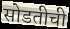
सोडतीची